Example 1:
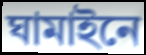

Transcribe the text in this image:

ঘামাইনে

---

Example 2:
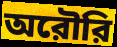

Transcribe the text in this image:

অরৌরি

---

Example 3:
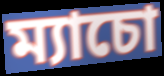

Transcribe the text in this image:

ম্যাচো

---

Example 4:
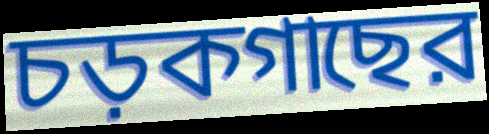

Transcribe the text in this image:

চড়কগাছের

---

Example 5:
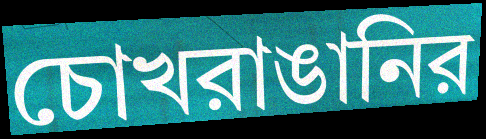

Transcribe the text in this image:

চোখরাঙানির